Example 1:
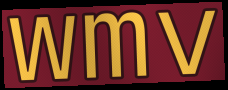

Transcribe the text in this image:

wmv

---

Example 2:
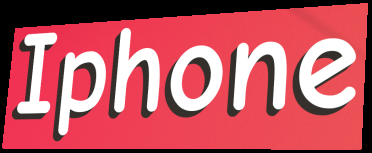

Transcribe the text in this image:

Iphone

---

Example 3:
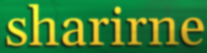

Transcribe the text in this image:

sharirne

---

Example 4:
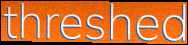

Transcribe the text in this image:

threshed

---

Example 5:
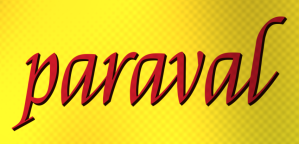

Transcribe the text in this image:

paraval